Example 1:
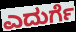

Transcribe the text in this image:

ಎದುರ್ಗೆ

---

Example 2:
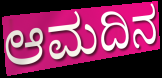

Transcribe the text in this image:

ಆಮದಿನ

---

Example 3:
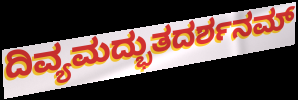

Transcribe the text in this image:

ದಿವ್ಯಮದ್ಭುತದರ್ಶನಮ್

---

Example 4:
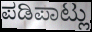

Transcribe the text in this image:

ಪಡಿಪಾಟ್ಲು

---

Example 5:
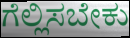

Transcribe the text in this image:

ಗೆಲ್ಲಿಸಬೇಕು